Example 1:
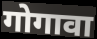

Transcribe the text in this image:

गोगावा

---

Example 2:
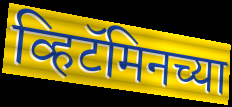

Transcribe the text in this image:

व्हिटॅमिनच्या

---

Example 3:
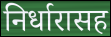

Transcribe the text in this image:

निर्धारासह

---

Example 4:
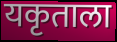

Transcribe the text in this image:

यकृताला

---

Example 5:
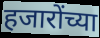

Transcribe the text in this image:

हजारोंच्या